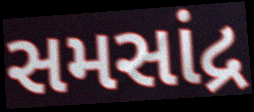
સમસાંદ્ર